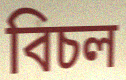
বিচল